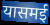
यासमई